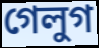
গেলুগ